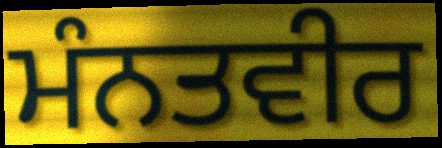
ਮੰਨਤਵੀਰ